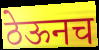
ठेऊनच